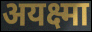
अयक्ष्मा